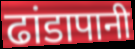
ढांडापानी